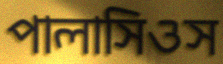
পালাসিওস